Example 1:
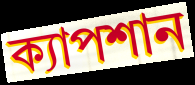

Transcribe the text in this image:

ক্যাপশান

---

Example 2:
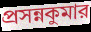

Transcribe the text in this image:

প্রসন্নকুমার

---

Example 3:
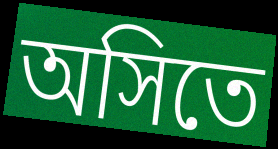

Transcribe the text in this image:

অসিতে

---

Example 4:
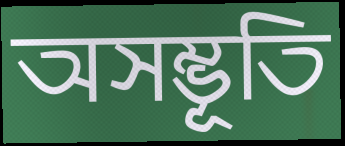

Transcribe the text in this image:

অসম্ভূতি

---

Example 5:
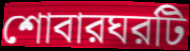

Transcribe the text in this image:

শোবারঘরটি